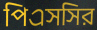
পিএসসির